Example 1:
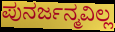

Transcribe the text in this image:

ಪುನರ್ಜನ್ಮವಿಲ್ಲ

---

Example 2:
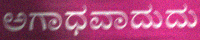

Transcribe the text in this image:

ಅಗಾಧವಾದುದು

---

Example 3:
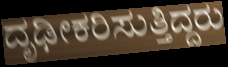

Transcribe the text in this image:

ದೃಢೀಕರಿಸುತ್ತಿದ್ದರು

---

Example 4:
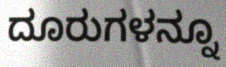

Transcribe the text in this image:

ದೂರುಗಳನ್ನೂ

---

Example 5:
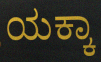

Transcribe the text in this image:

ಯಕ್ಕಾ